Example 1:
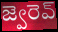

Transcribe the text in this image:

జ్వెరెవ్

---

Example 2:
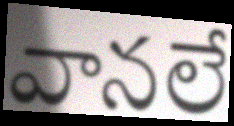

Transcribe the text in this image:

వానలే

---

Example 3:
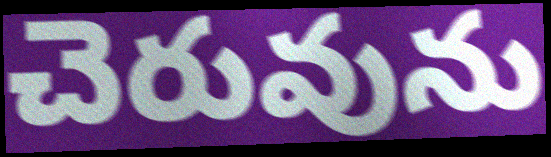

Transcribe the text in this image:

చెరువును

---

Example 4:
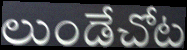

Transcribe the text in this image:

లుండేచోట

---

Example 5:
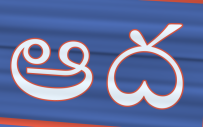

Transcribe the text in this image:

ఆద